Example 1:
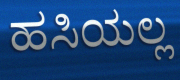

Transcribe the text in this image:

ಹಸಿಯಲ್ಲ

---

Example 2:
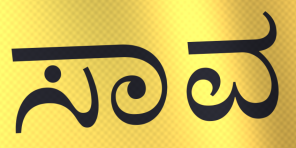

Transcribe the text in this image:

ಸಾವ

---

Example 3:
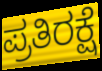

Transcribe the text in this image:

ಪ್ರತಿರಕ್ಷೆ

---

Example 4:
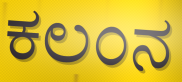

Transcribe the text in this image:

ಕಲಂನ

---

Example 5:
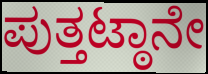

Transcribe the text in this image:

ಪುತ್ತಟ್ಠಾನೇ